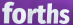
forths